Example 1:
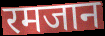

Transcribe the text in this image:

रमजान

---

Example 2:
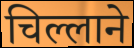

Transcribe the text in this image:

चिल्लाने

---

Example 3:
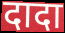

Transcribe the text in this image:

दादा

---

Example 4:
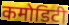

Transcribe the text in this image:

कमोडिटी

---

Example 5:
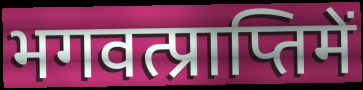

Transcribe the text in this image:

भगवत्प्राप्तिमें